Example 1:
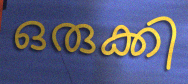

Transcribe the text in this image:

ഒരുക്കി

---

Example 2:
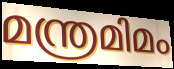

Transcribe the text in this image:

മന്ത്രമിമം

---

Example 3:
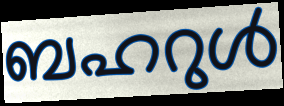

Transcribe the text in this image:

ബഹറുൾ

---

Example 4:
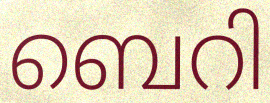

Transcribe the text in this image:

ബെറി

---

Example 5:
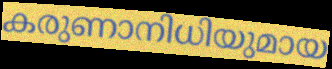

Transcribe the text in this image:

കരുണാനിധിയുമായ